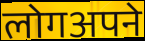
लोगअपने